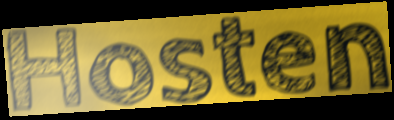
Hosten